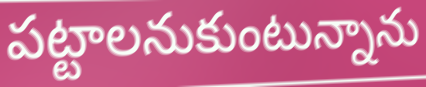
పట్టాలనుకుంటున్నాను